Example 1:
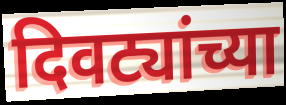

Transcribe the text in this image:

दिवट्यांच्या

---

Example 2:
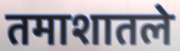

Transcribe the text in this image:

तमाशातले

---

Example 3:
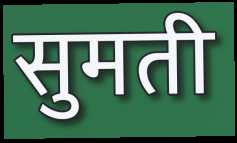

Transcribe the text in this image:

सुमती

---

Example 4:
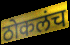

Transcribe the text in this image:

ठोकलंच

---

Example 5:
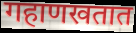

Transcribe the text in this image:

गहाणखतात